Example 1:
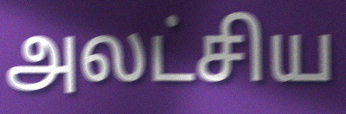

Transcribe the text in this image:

அலட்சிய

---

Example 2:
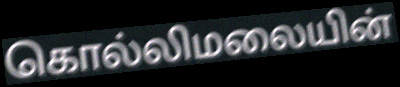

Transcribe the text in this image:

கொல்லிமலையின்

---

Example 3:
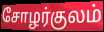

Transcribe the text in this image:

சோழர்குலம்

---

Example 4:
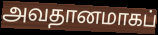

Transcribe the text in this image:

அவதானமாகப்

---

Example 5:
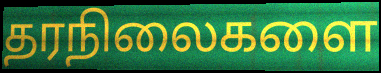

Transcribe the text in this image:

தரநிலைகளை